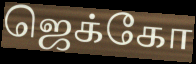
ஜெக்கோ